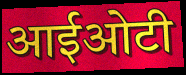
आईओटी